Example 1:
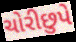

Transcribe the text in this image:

ચોરીછુપે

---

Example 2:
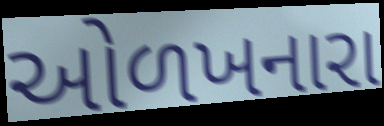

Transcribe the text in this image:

ઓળખનારા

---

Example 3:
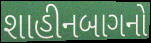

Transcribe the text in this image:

શાહીનબાગનો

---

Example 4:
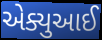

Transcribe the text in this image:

એક્યુઆઈ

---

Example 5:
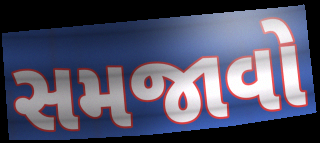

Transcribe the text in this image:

સમજાવો